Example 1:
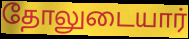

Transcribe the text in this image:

தோலுடையார்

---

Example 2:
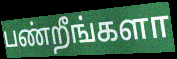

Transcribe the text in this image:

பண்றீங்களா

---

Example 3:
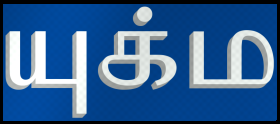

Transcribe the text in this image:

யுக்ம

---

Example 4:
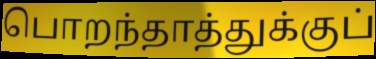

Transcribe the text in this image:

பொறந்தாத்துக்குப்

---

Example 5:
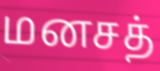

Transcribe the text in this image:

மனசத்